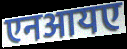
एनआयए